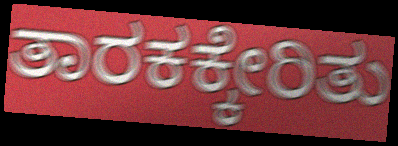
ತಾರಕಕ್ಕೇರಿತು